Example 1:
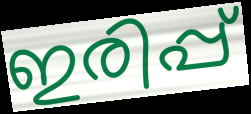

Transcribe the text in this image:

ഇരിപ്പ്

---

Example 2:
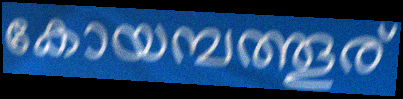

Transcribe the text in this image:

കോയമ്പത്തൂര്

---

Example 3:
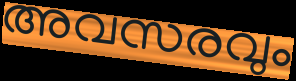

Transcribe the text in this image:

അവസരവും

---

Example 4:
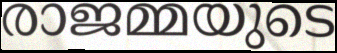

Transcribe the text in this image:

രാജമ്മയുടെ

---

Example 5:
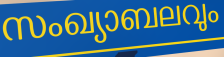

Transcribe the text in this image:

സംഖ്യാബലവും